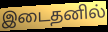
இடைதனில்